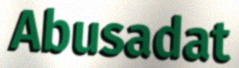
Abusadat